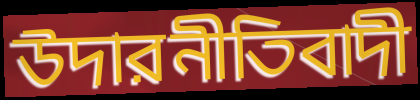
উদারনীতিবাদী